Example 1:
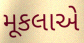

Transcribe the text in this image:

મૂકલાએ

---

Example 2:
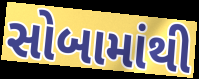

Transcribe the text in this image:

સોબામાંથી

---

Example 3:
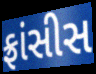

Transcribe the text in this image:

ફ્રાંસીસ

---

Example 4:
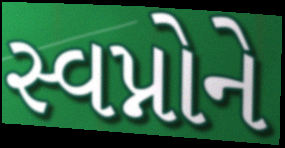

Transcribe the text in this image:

સ્વપ્નોને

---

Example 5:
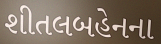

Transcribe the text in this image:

શીતલબહેનના